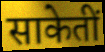
साकेतीं